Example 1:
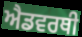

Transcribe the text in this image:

ਐਡਵਰਥੀ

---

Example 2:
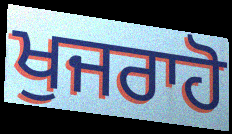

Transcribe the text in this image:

ਖੁਜਰਾਹੋ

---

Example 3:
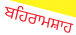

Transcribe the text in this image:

ਬਹਿਰਾਮਸ਼ਾਹ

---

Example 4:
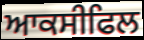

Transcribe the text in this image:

ਆਕਸੀਫਿਲ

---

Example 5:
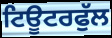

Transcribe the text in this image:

ਟਿਊਟਰਫੁੱਲ